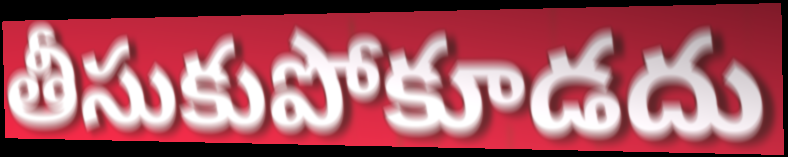
తీసుకుపోకూడదు